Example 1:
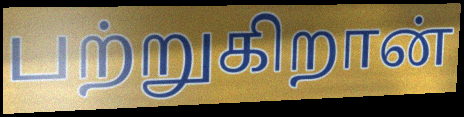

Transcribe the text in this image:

பற்றுகிறான்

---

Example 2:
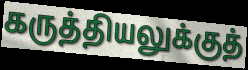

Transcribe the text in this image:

கருத்தியலுக்குத்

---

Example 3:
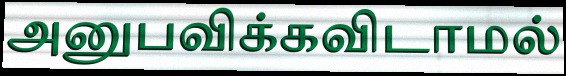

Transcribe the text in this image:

அனுபவிக்கவிடாமல்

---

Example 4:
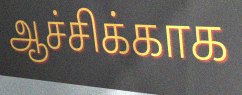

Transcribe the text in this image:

ஆச்சிக்காக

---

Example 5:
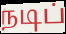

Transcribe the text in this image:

நடிப்